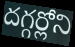
దగ్గర్లోని